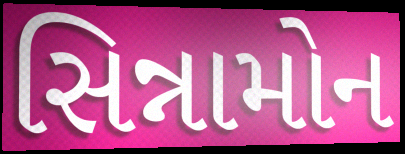
સિન્નામોન